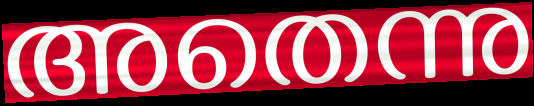
അതെന്നു